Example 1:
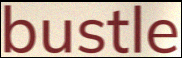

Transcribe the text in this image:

bustle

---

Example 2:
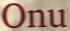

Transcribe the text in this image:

Onu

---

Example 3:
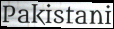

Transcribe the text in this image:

Pakistani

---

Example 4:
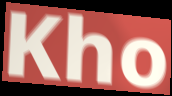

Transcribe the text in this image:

Kho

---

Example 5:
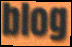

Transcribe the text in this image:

blog